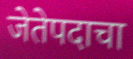
जेतेपदाचा